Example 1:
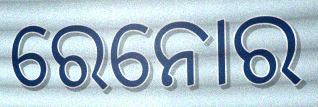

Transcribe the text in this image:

ରେନୋର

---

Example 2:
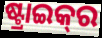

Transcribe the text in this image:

ଷ୍ଟ୍ରାଇକ୍‍ର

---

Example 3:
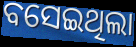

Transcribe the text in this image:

ବସେଇଥିଲା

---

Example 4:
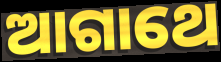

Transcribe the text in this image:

ଆଗାଥେ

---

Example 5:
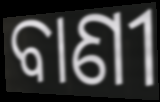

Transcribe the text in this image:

ବାଣୀ